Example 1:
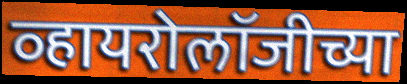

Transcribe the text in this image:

व्हायरोलॉजीच्या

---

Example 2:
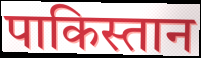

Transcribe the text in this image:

पाकिस्तान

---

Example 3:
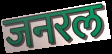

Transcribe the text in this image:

जनरल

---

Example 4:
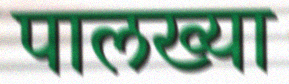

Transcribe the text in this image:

पालख्या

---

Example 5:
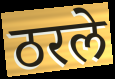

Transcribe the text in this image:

ठरले